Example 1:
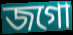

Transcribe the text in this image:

জগো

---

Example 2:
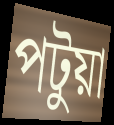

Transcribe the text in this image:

পটুয়া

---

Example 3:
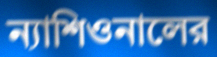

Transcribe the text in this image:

ন্যাশিওনালের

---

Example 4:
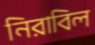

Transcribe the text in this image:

নিরাবিল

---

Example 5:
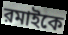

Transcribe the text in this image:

রমাইকে